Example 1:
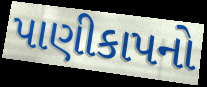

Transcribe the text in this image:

પાણીકાપનો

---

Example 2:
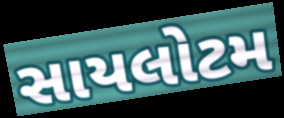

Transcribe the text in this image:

સાયલોટમ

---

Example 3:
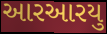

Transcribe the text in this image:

આરઆરયુ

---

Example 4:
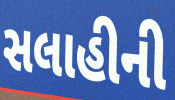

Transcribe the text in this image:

સલાહીની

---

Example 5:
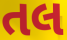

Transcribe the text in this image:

તલ